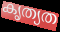
കൃത്യത